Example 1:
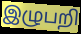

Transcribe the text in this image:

இழுபறி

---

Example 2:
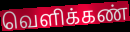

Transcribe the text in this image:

வெளிக்கண்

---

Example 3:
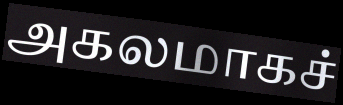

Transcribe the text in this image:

அகலமாகச்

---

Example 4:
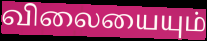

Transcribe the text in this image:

விலையையும்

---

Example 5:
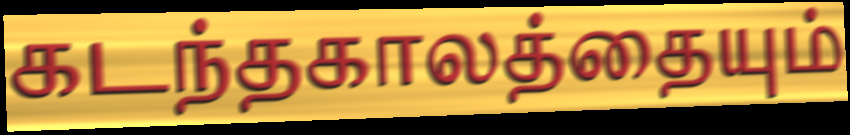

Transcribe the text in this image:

கடந்தகாலத்தையும்